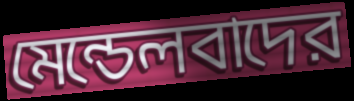
মেন্ডেলবাদের